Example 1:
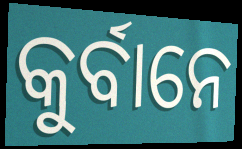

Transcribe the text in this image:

କୁର୍ବାନେ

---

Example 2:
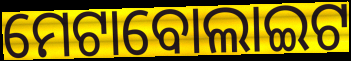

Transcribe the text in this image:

ମେଟାବୋଲାଇଟ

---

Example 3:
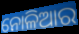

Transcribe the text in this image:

ନୋଳିଆର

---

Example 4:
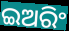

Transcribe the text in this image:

ଇଅରିଂ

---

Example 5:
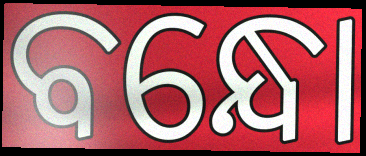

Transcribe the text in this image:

ବନ୍ଧୋ